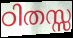
ഠിതസ്സ